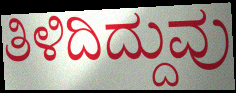
ತಿಳಿದಿದ್ದುವು